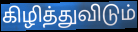
கிழித்துவிடும்